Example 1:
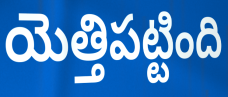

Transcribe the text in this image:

యెత్తిపట్టింది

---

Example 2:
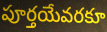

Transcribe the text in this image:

పూర్తయేవరకూ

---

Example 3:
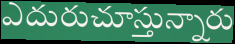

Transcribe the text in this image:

ఎదురుచూస్తున్నారు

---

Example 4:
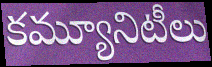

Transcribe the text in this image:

కమ్యూనిటీలు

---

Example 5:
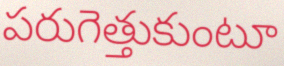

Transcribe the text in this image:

పరుగెత్తుకుంటూ